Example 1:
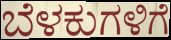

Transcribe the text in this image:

ಬೆಳಕುಗಳಿಗೆ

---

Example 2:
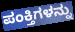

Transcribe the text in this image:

ಪಂಕ್ತಿಗಳನ್ನು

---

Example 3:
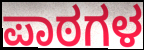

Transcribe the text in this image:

ಪಾಠಗಳ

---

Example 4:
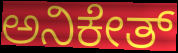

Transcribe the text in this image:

ಅನಿಕೇತ್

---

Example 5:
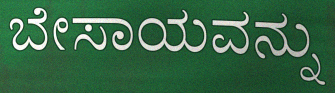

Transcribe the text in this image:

ಬೇಸಾಯವನ್ನು